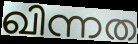
ഖിന്നത